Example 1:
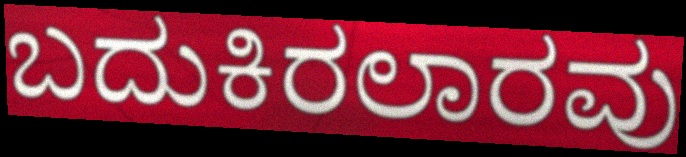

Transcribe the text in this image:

ಬದುಕಿರಲಾರವು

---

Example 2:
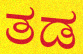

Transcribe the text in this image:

ತಡ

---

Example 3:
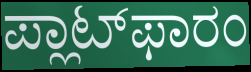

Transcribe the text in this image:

ಪ್ಲಾಟ್‌ಫಾರಂ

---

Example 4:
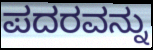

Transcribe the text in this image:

ಪದರವನ್ನು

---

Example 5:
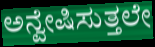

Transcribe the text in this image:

ಅನ್ವೇಷಿಸುತ್ತಲೇ